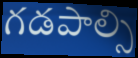
గడపాల్సి